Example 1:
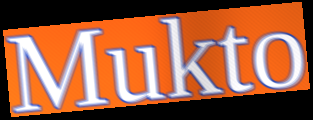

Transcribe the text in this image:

Mukto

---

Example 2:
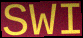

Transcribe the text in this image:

SWI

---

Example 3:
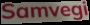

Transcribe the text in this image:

Samvegi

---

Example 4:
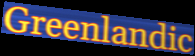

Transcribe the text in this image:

Greenlandic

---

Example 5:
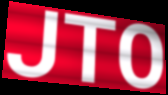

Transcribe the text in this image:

JTO